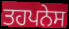
ਤਹਪਨੇਸ